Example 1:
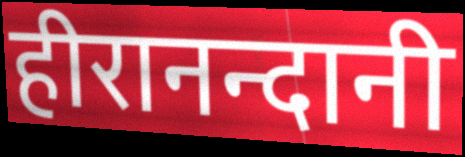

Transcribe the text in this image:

हीरानन्दानी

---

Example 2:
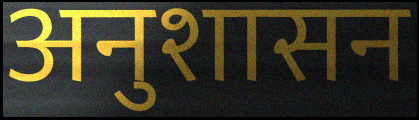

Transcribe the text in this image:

अनुशासन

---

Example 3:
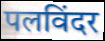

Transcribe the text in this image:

पलविंदर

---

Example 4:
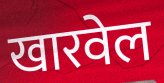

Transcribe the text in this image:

खारवेल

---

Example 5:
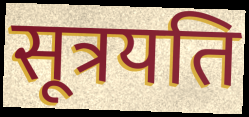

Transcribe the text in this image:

सूत्रयति